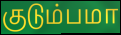
குடும்பமா